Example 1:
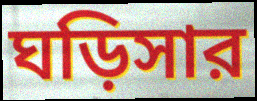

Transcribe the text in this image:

ঘড়িসার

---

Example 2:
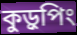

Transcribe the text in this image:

কুড়ুপিং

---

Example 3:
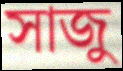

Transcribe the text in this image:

সাজু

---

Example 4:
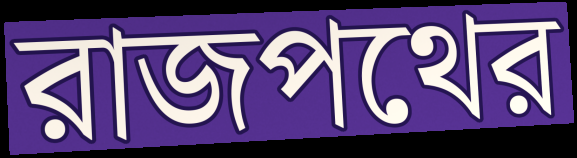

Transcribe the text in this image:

রাজপথের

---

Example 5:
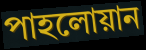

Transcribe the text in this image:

পাহলোয়ান